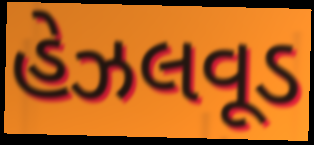
હેઝલવૂડ